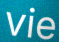
vie